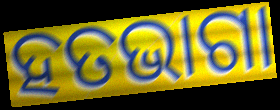
ହତଭାଗା